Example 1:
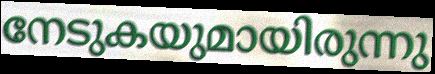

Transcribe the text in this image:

നേടുകയുമായിരുന്നു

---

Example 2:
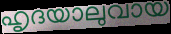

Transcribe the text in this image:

ഹൃദയാലുവായ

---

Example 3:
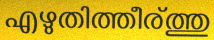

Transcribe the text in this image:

എഴുതിത്തീര്ത്തു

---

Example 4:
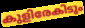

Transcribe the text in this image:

കുളിരേകിടും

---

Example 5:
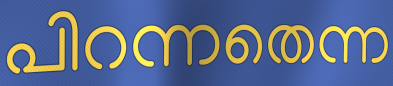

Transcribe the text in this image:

പിറന്നതെന്ന